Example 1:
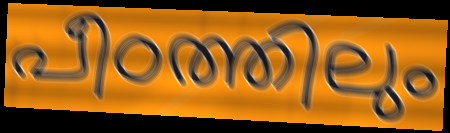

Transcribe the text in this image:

പീഠത്തിലും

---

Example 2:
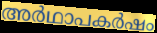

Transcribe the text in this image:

അർഥാപകർഷം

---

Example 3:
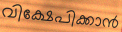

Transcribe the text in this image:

വിക്ഷേപിക്കാൻ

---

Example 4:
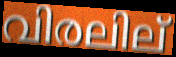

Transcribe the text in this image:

വിരലില്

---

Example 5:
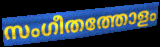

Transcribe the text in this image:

സംഗീതത്തോളം